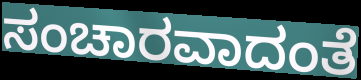
ಸಂಚಾರವಾದಂತೆ